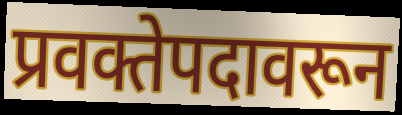
प्रवक्तेपदावरून